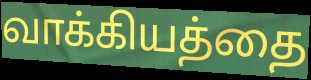
வாக்கியத்தை